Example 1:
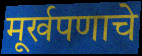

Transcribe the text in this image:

मूर्खपणाचे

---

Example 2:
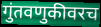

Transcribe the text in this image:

गुंतवणुकीवरच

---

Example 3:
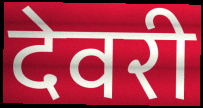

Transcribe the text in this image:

देवरी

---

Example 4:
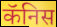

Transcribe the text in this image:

कॅनिस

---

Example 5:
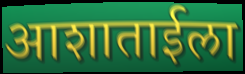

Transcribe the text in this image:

आशाताईला